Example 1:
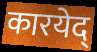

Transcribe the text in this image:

कारयेद्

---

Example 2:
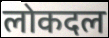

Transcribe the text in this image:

लोकदल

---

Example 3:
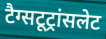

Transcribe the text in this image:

टैग्सटूट्रांसलेट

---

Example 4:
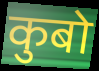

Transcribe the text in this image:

कुबो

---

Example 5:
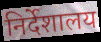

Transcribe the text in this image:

निर्देशालय